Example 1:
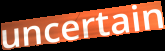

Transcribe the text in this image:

uncertain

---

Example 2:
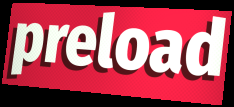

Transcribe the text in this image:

preload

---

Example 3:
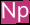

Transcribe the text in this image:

Np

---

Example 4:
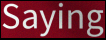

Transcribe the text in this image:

Saying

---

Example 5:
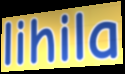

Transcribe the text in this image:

lihila